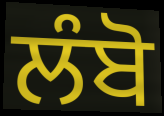
ਲੰਬੋ